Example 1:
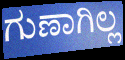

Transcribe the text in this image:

ಗುಣಾಗಿಲ್ಲ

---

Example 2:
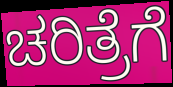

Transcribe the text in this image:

ಚರಿತ್ರೆಗೆ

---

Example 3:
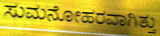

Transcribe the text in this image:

ಸುಮನೋಹರವಾಗಿತ್ತು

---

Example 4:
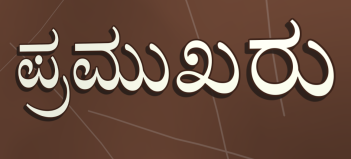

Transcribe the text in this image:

ಪ್ರಮುಖರು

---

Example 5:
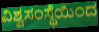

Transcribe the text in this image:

ವಿಶ್ವಸಂಸ್ಥೆಯಿಂದ